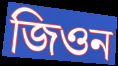
জিওন